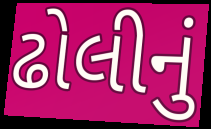
ઢોલીનું